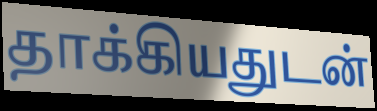
தாக்கியதுடன்